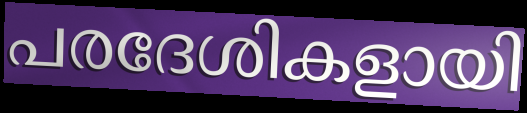
പരദേശികളായി